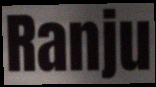
Ranju